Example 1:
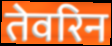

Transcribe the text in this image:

तेवरिन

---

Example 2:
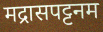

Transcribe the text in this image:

मद्रासपट्टनम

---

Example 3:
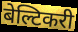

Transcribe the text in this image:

बेल्टिकरी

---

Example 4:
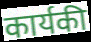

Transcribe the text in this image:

कार्यकी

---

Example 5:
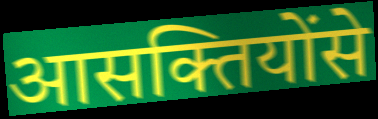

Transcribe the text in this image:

आसक्तियोंसे